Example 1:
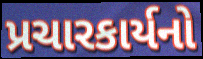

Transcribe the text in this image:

પ્રચારકાર્યનો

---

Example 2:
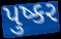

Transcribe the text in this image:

પુષ્કર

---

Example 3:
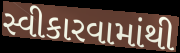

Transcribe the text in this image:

સ્વીકારવામાંથી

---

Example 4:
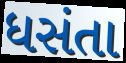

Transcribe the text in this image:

ધસંતા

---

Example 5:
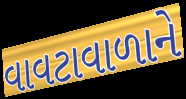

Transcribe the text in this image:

વાવટાવાળાને